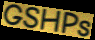
GSHPs